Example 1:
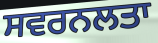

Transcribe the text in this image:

ਸਵਰਨਲਤਾ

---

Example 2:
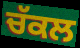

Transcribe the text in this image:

ਚੱਕਲ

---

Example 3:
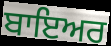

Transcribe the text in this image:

ਬਾਇਅਰ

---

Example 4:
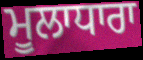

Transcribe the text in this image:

ਮੂਲਾਧਾਰਾ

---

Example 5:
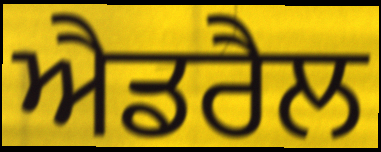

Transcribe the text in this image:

ਐਡਰੈਲ